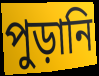
পুড়ানি